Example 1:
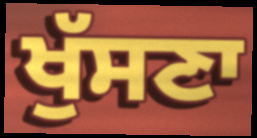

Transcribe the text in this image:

ਖੁੱਸਣਾ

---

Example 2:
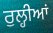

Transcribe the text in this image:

ਰੁਲ੍ਹੀਆਂ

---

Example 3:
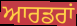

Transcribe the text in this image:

ਆਰਡਰਾਂ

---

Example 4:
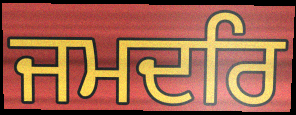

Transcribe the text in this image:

ਜਮਦਰਿ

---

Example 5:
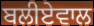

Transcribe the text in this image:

ਬਲੀਏਵਾਲ